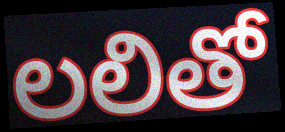
లలితో